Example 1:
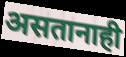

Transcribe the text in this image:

असतानाही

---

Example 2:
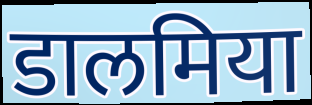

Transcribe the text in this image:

डालमिया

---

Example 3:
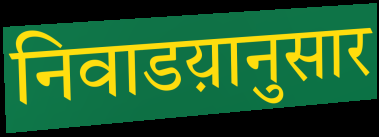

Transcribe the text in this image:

निवाडय़ानुसार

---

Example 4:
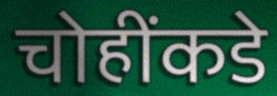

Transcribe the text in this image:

चोहींकडे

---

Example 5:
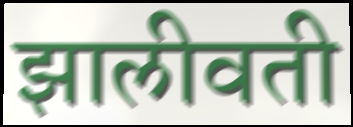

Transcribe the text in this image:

झालीवती